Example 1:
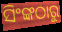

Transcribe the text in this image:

ସିଂଙ୍କଠାରୁ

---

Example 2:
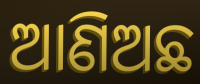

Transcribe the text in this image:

ଆଣିଅଛ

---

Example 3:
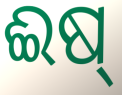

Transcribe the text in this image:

ଈଷ୍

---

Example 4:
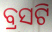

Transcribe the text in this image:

ବ୍ରସଟି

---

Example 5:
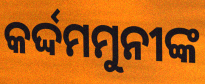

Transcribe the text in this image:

କର୍ଦ୍ଦମମୁନୀଙ୍କ